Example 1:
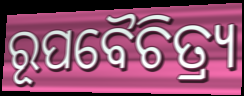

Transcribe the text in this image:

ରୂପବୈଚିତ୍ର୍ୟ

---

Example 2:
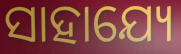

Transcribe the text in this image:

ସାହାଯ୍ୟେ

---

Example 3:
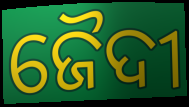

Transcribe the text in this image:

ଜୈଦୀ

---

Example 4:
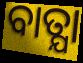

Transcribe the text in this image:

ବାତ୍ଯା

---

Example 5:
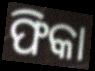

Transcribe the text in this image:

ଫିକା